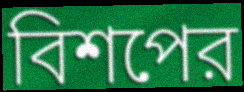
বিশপের